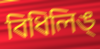
বিধিলিঙ্